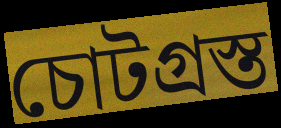
চোটগ্রস্ত